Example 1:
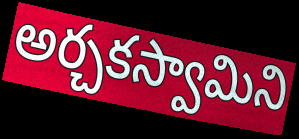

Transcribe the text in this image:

అర్చకస్వామిని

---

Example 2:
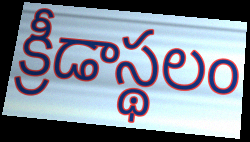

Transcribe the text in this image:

క్రీడాస్థలం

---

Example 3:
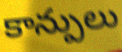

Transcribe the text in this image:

కాన్పులు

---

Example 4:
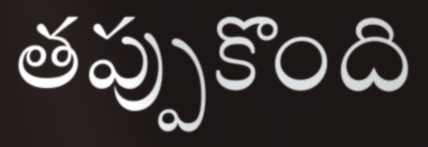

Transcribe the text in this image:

తప్పుకొంది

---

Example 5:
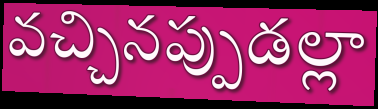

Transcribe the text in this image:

వచ్చినప్పుడల్లా